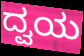
ದ್ವಯ